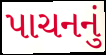
પાચનનું